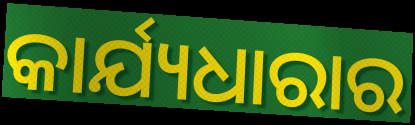
କାର୍ଯ୍ୟଧାରାର